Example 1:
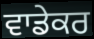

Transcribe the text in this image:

ਵਾਡੇਕਰ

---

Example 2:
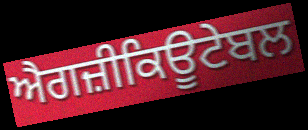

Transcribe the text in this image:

ਐਗਜ਼ੀਕਿਊਟੇਬਲ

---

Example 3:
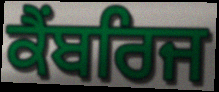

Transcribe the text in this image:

ਕੈਂਬਰਿਜ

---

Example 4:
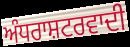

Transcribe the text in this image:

ਅੰਧਰਾਸ਼ਟਰਵਾਦੀ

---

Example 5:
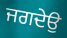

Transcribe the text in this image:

ਜਗਦੇਉ